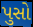
પુસો